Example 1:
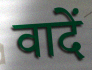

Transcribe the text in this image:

वादें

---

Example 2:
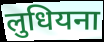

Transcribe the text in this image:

लुधियना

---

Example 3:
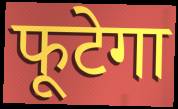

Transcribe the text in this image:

फूटेगा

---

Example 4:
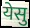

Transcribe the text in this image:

येसु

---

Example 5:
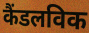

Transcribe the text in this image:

कैंडलविक